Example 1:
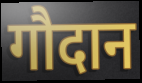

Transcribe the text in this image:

गौदान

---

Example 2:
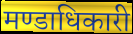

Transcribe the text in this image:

मण्डाधिकारी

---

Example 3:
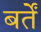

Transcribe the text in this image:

बर्तें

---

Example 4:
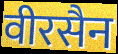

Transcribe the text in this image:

वीरसैन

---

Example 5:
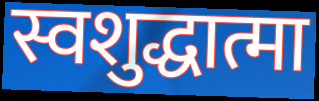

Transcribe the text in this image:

स्वशुद्धात्मा